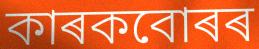
কাৰকবোৰৰ